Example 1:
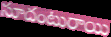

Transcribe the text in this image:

సూదంటురాయి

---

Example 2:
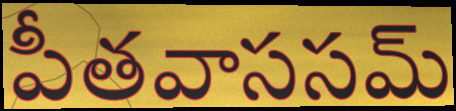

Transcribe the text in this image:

పీతవాససమ్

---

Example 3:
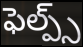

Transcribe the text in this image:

ఫెల్ప్స్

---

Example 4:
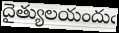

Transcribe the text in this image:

దైత్యులయందుఁ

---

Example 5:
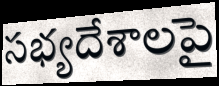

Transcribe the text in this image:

సభ్యదేశాలపై